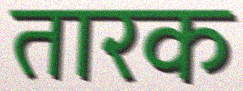
तारक